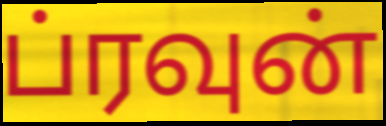
ப்ரவுன்